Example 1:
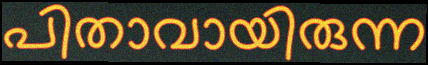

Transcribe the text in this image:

പിതാവായിരുന്ന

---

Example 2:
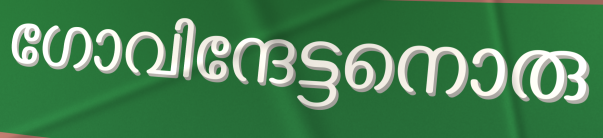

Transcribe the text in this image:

ഗോവിന്ദേട്ടനൊരു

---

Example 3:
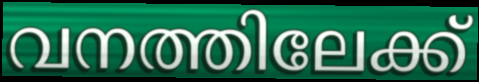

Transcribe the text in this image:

വനത്തിലേക്ക്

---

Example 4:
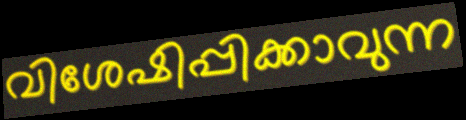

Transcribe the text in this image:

വിശേഷിപ്പിക്കാവുന്ന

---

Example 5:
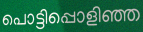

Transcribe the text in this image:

പൊട്ടിപ്പൊളിഞ്ഞ